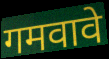
गमवावे